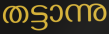
തട്ടാന്നു